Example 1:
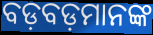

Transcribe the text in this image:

ବଡ଼ବଡ଼ମାନଙ୍କ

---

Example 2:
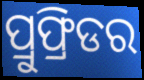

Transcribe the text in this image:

ପ୍ରୁଫ୍ରିଡର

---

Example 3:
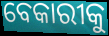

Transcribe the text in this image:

ବେକାରୀକୁ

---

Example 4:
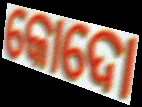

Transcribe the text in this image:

କୋଦୋ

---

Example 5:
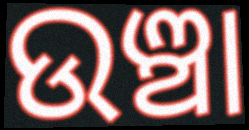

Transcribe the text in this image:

ଉଞ୍ଚା